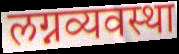
लग्नव्यवस्था